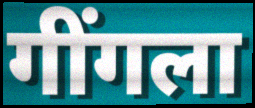
गींगला